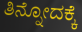
ತಿನ್ನೋದಕ್ಕೆ